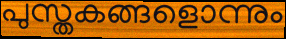
പുസ്തകങ്ങളൊന്നും